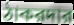
ঠাকরদার